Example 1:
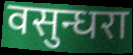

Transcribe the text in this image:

वसुन्धरा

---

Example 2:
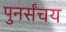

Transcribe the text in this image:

पुनर्संचय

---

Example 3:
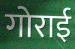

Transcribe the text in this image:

गोराई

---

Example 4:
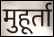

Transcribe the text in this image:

मुहूर्ता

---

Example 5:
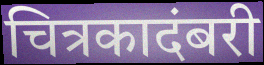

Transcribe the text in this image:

चित्रकादंबरी